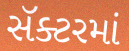
સૅક્ટરમાં